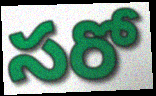
సరో